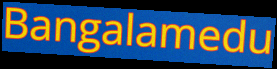
Bangalamedu